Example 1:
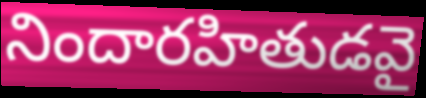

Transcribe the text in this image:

నిందారహితుడవై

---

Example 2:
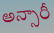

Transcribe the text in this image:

అన్సారీ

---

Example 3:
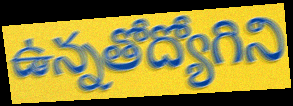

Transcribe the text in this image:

ఉన్నతోద్యోగిని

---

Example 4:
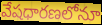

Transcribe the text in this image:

వేషధారణలోనూ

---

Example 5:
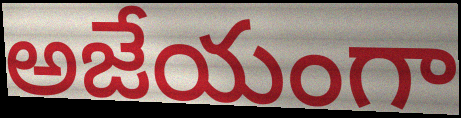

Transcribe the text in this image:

అజేయంగా